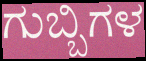
ಗುಬ್ಬಿಗಳ